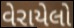
વેરાયેલો